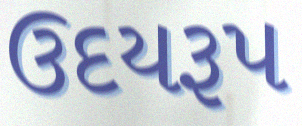
ઉદયરૂપ